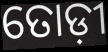
ତୋଡ଼ୀ